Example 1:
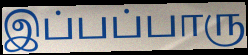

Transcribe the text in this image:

இப்பப்பாரு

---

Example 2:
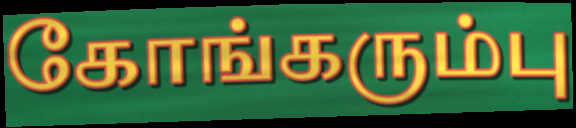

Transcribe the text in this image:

கோங்கரும்பு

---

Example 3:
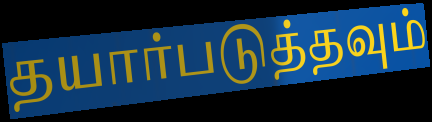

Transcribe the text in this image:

தயார்படுத்தவும்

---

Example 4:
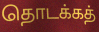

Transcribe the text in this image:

தொடக்கத்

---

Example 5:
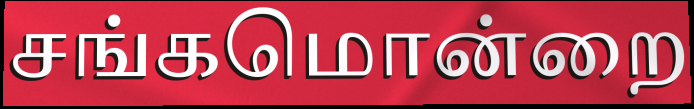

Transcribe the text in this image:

சங்கமொன்றை